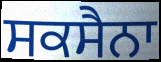
ਸਕਸੈਨਾ